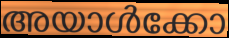
അയാൾക്കോ